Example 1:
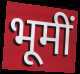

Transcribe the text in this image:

भूमीं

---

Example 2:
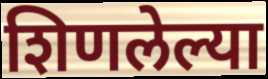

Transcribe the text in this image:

शिणलेल्या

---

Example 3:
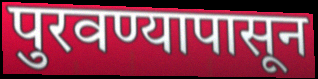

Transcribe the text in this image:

पुरवण्यापासून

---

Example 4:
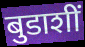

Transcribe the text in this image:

बुडाशीं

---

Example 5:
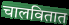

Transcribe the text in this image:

चालवितात